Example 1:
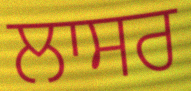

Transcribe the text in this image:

ਲਾਸਰ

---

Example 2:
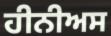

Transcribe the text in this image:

ਹੀਨੀਅਸ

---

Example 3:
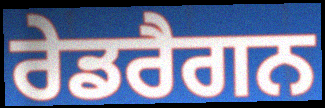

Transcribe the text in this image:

ਰੇਡਰੈਗਨ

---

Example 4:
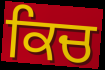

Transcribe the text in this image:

ਕਿਚ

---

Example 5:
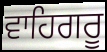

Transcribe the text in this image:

ਵਾਹਿਗਰੂ